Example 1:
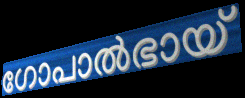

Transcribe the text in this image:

ഗോപാൽഭായ്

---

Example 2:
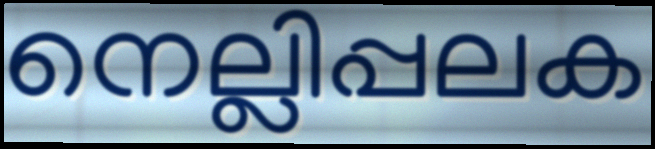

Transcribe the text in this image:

നെല്ലിപ്പലക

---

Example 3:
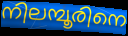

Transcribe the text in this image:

നിലമ്പൂരിനെ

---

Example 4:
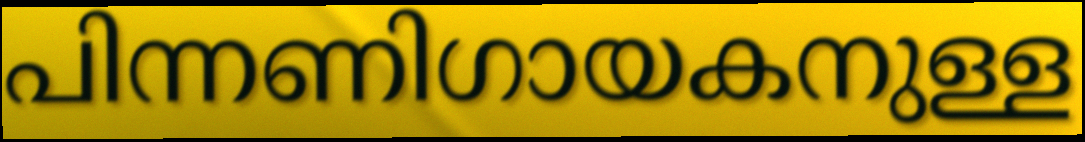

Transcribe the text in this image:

പിന്നണിഗായകനുള്ള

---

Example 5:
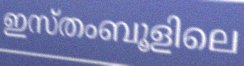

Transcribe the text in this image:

ഇസ്തംബൂളിലെ